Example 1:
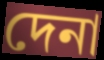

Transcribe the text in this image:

দেনা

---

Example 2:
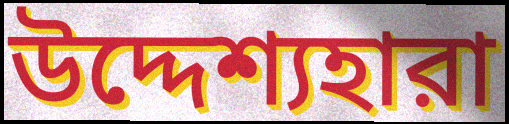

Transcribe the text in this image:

উদ্দেশ্যহারা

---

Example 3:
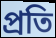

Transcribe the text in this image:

প্রতি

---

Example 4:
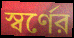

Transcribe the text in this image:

স্বর্ণের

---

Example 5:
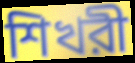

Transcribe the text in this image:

শিখরী